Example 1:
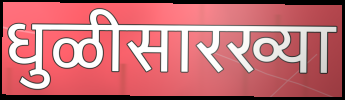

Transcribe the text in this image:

धुळीसारख्या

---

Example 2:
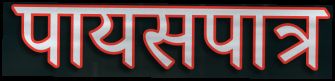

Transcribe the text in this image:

पायसपात्र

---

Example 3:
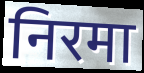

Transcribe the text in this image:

निरमा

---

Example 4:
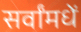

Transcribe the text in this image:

सर्वांमधें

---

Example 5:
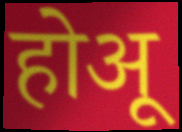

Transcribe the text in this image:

होअू